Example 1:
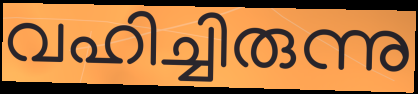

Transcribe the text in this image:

വഹിച്ചിരുന്നു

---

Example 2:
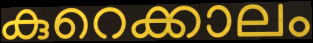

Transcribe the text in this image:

കുറെക്കാലം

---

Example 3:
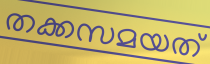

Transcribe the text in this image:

തക്കസമയത്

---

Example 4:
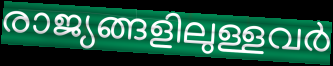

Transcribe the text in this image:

രാജ്യങ്ങളിലുള്ളവർ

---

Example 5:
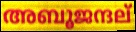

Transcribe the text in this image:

അബൂജന്ദല്